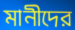
মানীদের